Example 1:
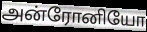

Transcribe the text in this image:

அன்ரோனியோ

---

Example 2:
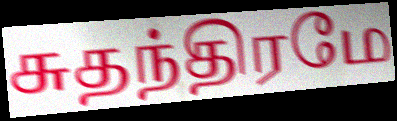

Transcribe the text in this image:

சுதந்திரமே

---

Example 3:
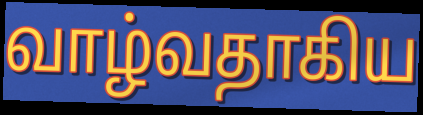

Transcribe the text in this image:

வாழ்வதாகிய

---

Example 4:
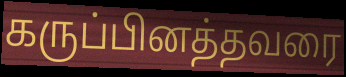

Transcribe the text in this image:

கருப்பினத்தவரை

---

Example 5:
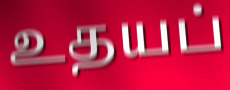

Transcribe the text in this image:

உதயப்